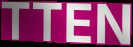
TTEN